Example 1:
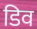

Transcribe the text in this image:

डिव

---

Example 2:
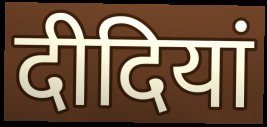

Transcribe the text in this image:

दीदियां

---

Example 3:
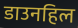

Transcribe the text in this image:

डाउनहिल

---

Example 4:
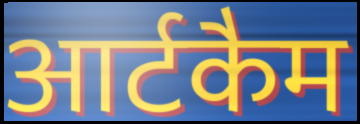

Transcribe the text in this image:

आर्टकैम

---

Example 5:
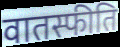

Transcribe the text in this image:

वातस्फीति